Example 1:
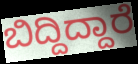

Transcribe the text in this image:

ಬಿದ್ದಿದ್ದಾರೆ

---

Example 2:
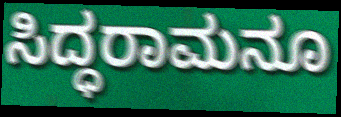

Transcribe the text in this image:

ಸಿದ್ಧರಾಮನೂ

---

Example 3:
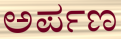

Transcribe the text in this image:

ಅರ್ಪಣ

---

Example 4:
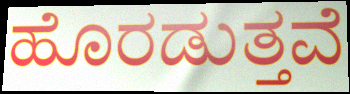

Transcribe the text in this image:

ಹೊರಡುತ್ತವೆ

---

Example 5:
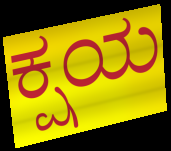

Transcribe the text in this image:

ಕ್ಷಯ